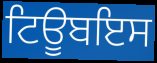
ਟਿਊਬਇਸ